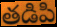
తడిపి